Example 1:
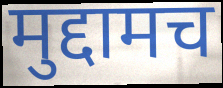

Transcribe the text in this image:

मुद्दामच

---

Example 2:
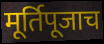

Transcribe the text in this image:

मूर्तिपूजाच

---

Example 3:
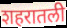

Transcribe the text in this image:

शहरातली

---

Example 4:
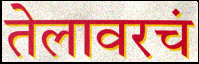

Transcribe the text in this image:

तेलावरचं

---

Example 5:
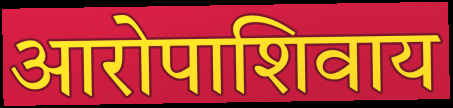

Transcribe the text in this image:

आरोपाशिवाय